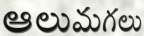
ఆలుమగలు